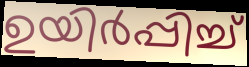
ഉയിർപ്പിച്ച്